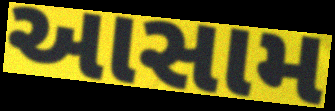
આસામ